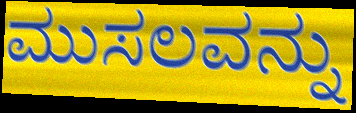
ಮುಸಲವನ್ನು